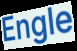
Engle